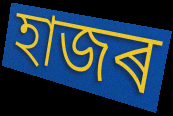
হাজৰ